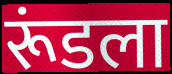
रूंडला